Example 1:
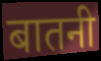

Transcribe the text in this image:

बातनी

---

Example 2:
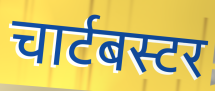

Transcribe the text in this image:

चार्टबस्टर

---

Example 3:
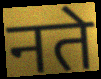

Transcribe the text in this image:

नते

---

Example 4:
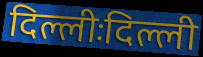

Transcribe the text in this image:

दिल्लीःदिल्ली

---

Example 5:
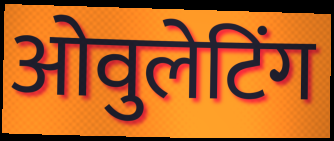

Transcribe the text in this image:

ओवुलेटिंग